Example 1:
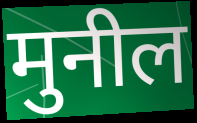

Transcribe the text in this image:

मुनील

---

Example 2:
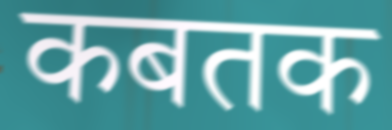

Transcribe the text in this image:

कबतक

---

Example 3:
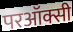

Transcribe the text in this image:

परऑक्सी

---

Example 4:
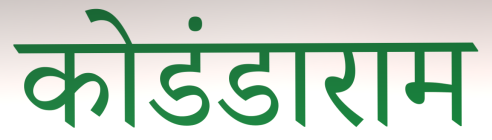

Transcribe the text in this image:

कोडंडाराम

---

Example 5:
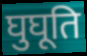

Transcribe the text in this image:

घुघूति